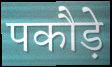
पकौड़े